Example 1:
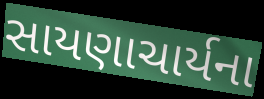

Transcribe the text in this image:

સાયણાચાર્યના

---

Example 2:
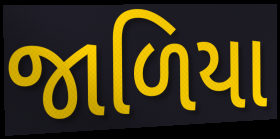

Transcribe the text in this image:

જાળિયા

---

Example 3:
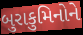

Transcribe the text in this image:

બુરાકુમિનોને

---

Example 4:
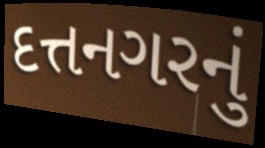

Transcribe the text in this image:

દત્તનગરનું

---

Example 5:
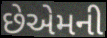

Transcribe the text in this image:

છેએમની